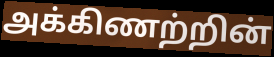
அக்கிணற்றின்